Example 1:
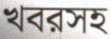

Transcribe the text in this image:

খবরসহ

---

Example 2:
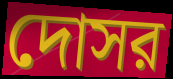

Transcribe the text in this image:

দোসর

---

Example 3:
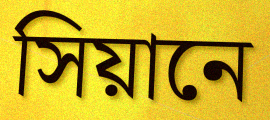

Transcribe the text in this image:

সিয়ানে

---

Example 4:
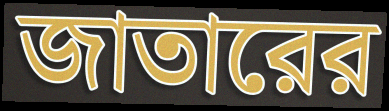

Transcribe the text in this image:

জাতারের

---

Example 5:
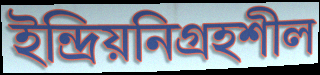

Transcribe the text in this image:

ইন্দ্রিয়নিগ্রহশীল